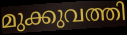
മുക്കുവത്തി